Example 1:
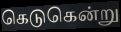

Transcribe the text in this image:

கெடுகென்று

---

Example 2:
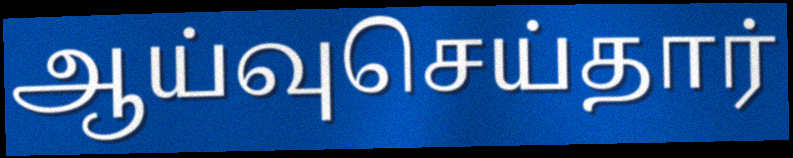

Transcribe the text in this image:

ஆய்வுசெய்தார்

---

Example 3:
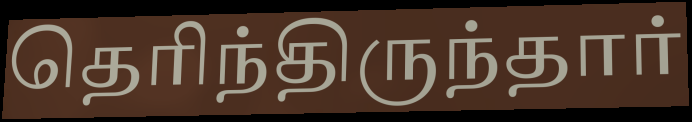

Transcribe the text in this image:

தெரிந்திருந்தார்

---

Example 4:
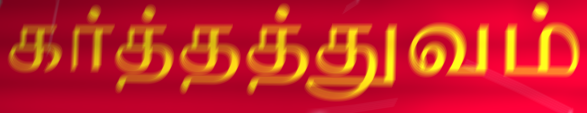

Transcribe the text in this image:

கர்த்தத்துவம்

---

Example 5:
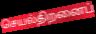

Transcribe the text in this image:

செயல்திறனைப்